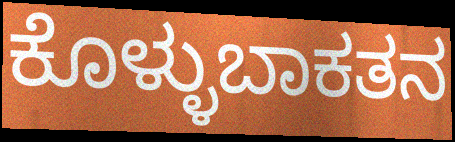
ಕೊಳ್ಳುಬಾಕತನ